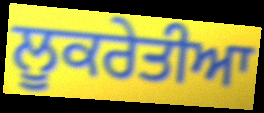
ਲੂਕਰੇਤੀਆ